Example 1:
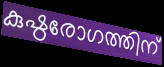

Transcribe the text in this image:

കുഷ്ഠരോഗത്തിന്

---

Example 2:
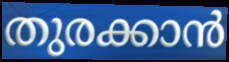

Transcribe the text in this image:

തുരക്കാൻ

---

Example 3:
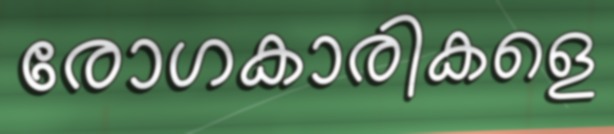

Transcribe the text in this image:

രോഗകാരികളെ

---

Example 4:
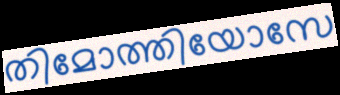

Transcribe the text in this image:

തിമോത്തിയോസേ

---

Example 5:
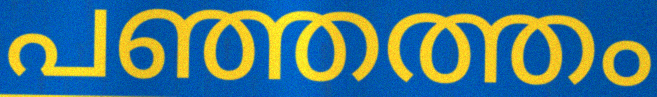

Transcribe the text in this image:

പഞ്ഞത്തം